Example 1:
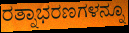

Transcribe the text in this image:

ರತ್ನಾಭರಣಗಳನ್ನೂ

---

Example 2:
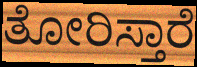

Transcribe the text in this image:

ತೋರಿಸ್ತಾರೆ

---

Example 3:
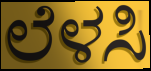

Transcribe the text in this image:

ಲೆಳಸಿ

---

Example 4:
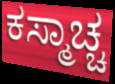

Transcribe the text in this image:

ಕಸ್ಮಾಚ್ಚ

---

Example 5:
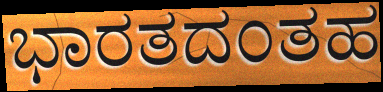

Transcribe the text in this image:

ಭಾರತದಂತಹ